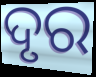
ଦୃର